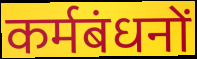
कर्मबंधनों